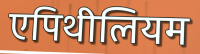
एपिथीलियम